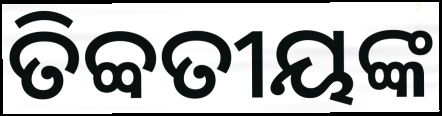
ତିବ୍ବତୀୟଙ୍କ